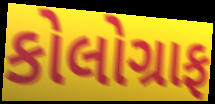
કોલોગ્રાફ